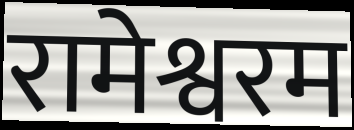
रामेश्वरम